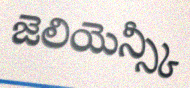
జెలియెన్స్కీ